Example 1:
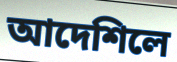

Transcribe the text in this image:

আদেশিলে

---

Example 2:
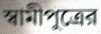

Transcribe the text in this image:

স্বামীপুত্রের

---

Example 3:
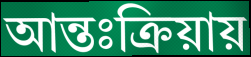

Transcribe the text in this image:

আন্তঃক্রিয়ায়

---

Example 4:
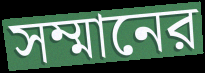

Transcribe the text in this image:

সম্মানের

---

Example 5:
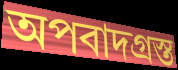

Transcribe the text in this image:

অপবাদগ্রস্ত